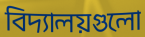
বিদ্যালয়গুলো